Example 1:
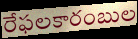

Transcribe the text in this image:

రేఫలకారంబుల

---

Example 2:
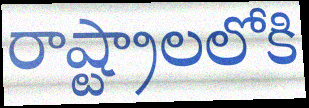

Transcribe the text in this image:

రాష్ట్రాలలోకి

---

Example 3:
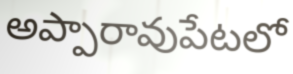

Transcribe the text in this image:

అప్పారావుపేటలో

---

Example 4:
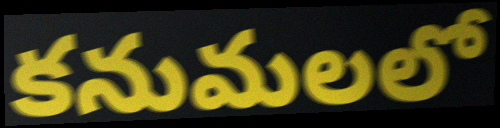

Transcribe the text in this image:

కనుమలలో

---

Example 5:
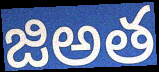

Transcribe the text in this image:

జిఅత